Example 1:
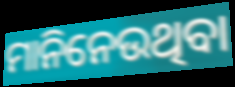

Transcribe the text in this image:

ମାନିନେଉଥିବା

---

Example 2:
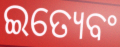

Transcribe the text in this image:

ଇତ୍ୟେବଂ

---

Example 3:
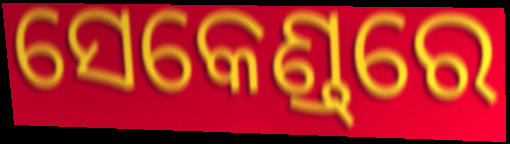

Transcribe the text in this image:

ସେକେଣ୍ଡ୍‌ରେ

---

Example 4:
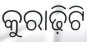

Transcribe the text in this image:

କୁରାଢ଼ିଟି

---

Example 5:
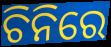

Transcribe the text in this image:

ଚିନିରେ